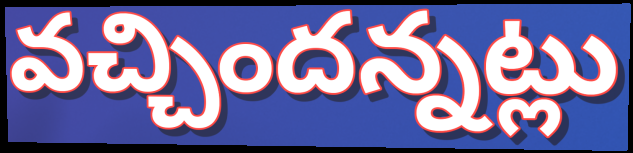
వచ్చిందన్నట్లు